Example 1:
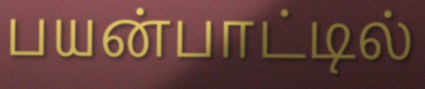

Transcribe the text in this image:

பயன்பாட்டில்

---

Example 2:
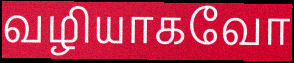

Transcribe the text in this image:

வழியாகவோ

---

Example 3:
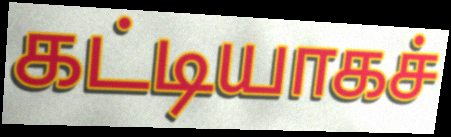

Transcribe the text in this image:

கட்டியாகச்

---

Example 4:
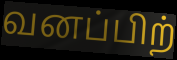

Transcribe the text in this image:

வனப்பிற்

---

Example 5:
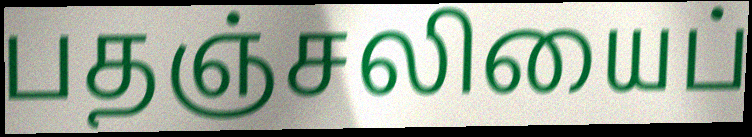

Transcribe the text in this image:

பதஞ்சலியைப்